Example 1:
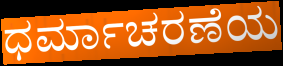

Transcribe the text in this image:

ಧರ್ಮಾಚರಣೆಯ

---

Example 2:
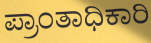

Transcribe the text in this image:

ಪ್ರಾಂತಾಧಿಕಾರಿ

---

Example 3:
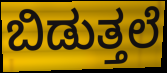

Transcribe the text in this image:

ಬಿಡುತ್ತಲೆ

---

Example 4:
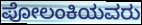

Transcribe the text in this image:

ಪೋಲಂಕಿಯವರು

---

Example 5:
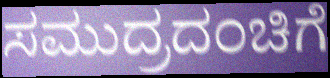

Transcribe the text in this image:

ಸಮುದ್ರದಂಚಿಗೆ